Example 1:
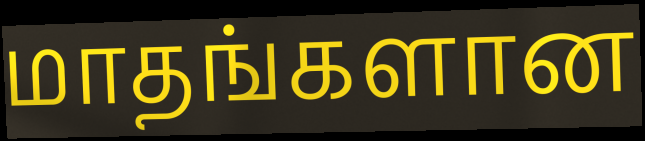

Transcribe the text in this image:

மாதங்களான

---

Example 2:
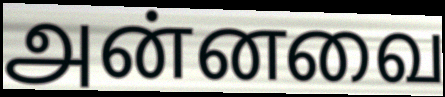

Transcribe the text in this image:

அன்னவை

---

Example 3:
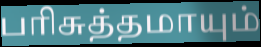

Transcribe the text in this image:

பரிசுத்தமாயும்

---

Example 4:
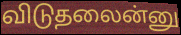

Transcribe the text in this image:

விடுதலைன்னு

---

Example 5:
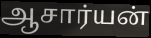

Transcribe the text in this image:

ஆசார்யன்